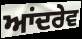
ਆਂਦਰੇਵ